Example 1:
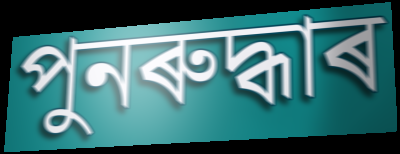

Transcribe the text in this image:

পুনৰুদ্ধাৰ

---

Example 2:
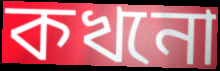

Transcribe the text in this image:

কখনো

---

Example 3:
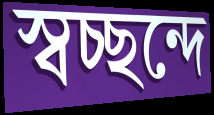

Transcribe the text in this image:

স্বচ্ছন্দে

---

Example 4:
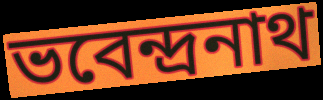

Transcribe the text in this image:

ভবেন্দ্ৰনাথ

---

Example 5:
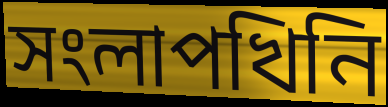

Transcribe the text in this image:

সংলাপখিনি